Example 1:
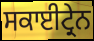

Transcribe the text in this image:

ਸਕਾਈਟ੍ਰੇਨ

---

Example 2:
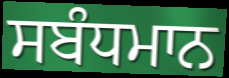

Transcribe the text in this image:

ਸਬੰਧਮਾਨ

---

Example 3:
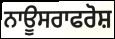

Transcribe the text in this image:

ਨਾਊਸਰਾਫਰੋਸ਼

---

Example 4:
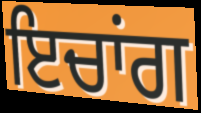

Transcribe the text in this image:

ਇਚਾਂਗ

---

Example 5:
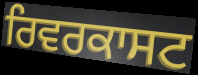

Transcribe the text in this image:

ਰਿਵਰਕਾਸਟ